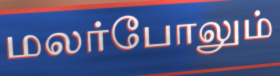
மலர்போலும்